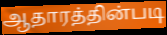
ஆதாரத்தின்படி